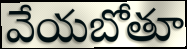
వేయబోతూ